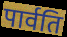
पार्वति